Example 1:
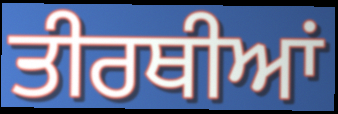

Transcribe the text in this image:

ਤੀਰਥੀਆਂ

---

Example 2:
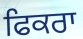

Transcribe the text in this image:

ਫਿਕਰਾ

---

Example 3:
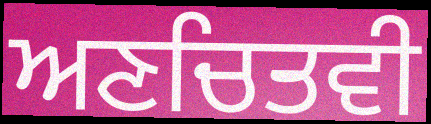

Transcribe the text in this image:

ਅਣਚਿਤਵੀ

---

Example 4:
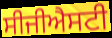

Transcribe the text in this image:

ਸੀਜੀਐਸਟੀ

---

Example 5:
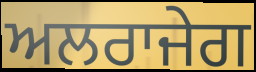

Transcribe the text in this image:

ਅਲਰਾਜੇਗ